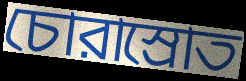
চোরাস্রোত